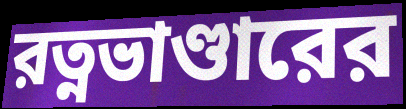
রত্নভাণ্ডারের